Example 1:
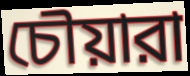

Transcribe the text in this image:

চৌয়ারা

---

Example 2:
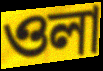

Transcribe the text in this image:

ওলা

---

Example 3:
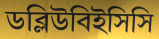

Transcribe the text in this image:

ডব্লিউবিইসিসি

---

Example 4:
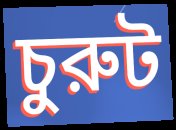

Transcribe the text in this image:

চুরুট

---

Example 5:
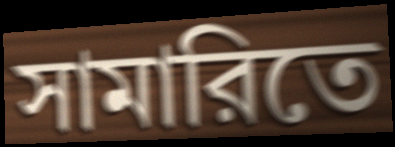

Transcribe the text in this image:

সামারিতে